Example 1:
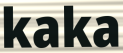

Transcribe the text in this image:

kaka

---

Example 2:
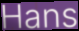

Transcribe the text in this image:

Hans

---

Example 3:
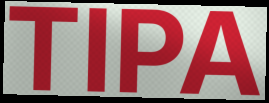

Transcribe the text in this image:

TIPA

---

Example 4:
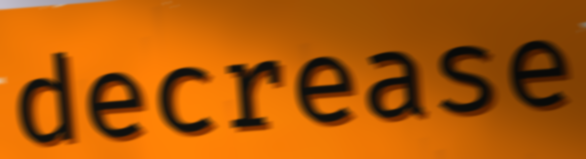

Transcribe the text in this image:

decrease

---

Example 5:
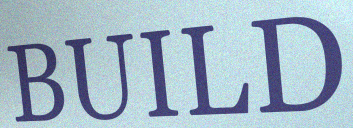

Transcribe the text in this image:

BUILD